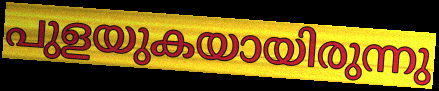
പുളയുകയായിരുന്നു